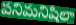
పనిమనిషిలా